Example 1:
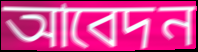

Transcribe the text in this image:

আবেদন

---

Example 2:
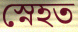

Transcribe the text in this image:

স্নেহত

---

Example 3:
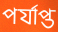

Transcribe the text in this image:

পৰ্যাপ্ত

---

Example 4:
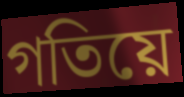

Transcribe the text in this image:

গতিয়ে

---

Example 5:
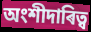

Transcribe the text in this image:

অংশীদাৰিত্ব